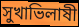
সুখাভিলাষী